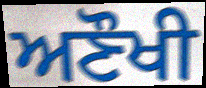
ਅਣੌਖੀ